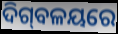
ଦିଗ୍‌ବଳୟରେ